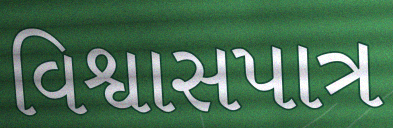
વિશ્વાસપાત્ર